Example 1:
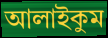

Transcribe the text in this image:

আলাইকুম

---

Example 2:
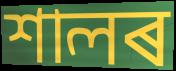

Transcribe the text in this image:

শালৰ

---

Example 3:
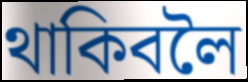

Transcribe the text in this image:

থাকিবলৈ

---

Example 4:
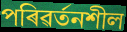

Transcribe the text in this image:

পৰিৱৰ্তনশীল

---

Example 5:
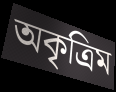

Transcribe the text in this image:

অকৃত্ৰিম